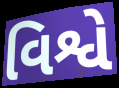
વિશ્વે